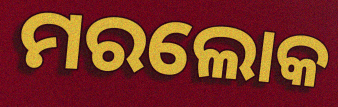
ମରଲୋକ